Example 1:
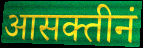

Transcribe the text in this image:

आसक्तीनं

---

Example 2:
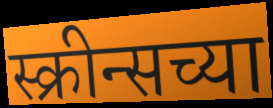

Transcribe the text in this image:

स्क्रीन्सच्या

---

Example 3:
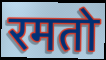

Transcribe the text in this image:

रमतो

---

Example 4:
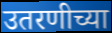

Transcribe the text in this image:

उतरणीच्या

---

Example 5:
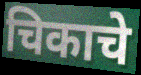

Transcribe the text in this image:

चिकाचे